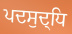
ਪਦਸੁਦ੍ਧਿ